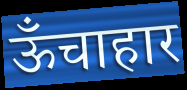
ऊँचाहार